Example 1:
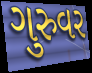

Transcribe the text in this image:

ગુરુવર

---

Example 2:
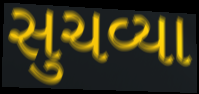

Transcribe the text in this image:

સુચવ્યા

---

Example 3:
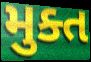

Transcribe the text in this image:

મુક્ત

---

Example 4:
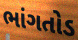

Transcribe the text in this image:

ભાંગતોડ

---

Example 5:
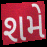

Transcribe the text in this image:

શમે